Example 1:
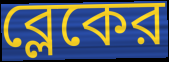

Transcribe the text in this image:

ব্লেকের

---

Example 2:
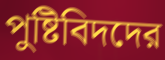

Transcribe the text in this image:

পুষ্টিবিদদের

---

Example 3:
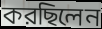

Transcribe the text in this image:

করছিলেন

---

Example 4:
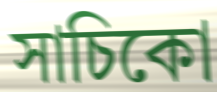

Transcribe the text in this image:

সাচিকো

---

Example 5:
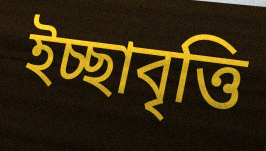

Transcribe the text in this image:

ইচ্ছাবৃত্তি